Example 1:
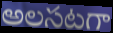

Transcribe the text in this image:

అలసటగా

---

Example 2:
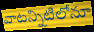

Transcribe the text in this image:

వాటన్నిటిలోనూ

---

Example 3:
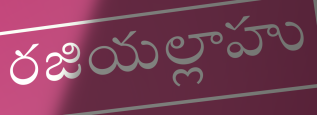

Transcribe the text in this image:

రజియల్లాహు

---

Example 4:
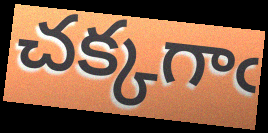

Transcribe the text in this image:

చక్కగాఁ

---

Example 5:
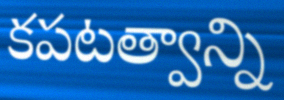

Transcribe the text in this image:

కపటత్వాన్ని